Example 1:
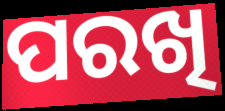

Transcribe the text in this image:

ପରଖି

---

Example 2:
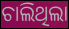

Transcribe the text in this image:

ଚାଲିଥିଲା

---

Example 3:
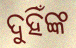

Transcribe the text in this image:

ଦୁହିଁଙ୍କ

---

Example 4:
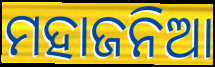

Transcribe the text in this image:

ମହାଜନିଆ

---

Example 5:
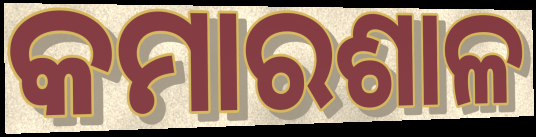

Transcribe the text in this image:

କମାରଶାଳ